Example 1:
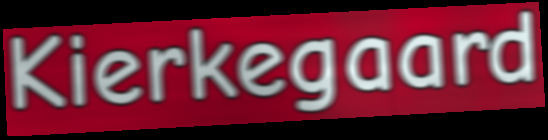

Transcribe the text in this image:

Kierkegaard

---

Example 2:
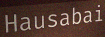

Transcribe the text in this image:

Hausabai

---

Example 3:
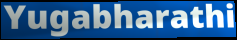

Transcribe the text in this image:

Yugabharathi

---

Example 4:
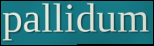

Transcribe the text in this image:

pallidum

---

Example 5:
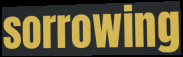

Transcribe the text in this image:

sorrowing